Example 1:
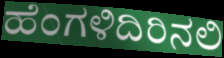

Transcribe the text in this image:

ಹೆಂಗಳಿದಿರಿನಲಿ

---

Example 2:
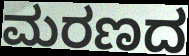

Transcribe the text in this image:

ಮರಣದ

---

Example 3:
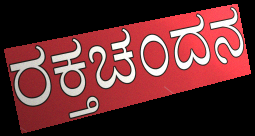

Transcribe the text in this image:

ರಕ್ತಚಂದನ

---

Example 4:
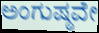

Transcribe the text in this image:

ಅಂಗುಷ್ಠವೇ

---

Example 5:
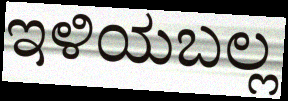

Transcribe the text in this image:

ಇಳಿಯಬಲ್ಲ